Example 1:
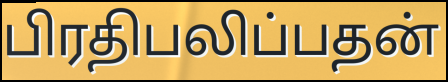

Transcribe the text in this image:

பிரதிபலிப்பதன்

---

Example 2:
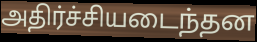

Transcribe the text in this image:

அதிர்ச்சியடைந்தன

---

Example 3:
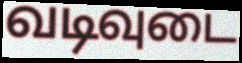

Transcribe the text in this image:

வடிவுடை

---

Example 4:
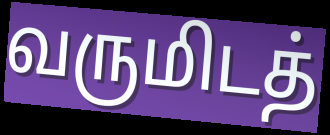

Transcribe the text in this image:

வருமிடத்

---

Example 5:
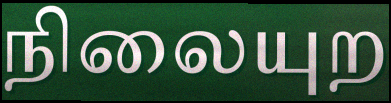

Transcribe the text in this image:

நிலையுற